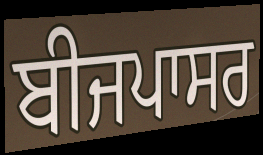
ਬੀਜਪਾਸਰ